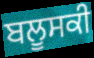
ਬਲੂਸਕੀ